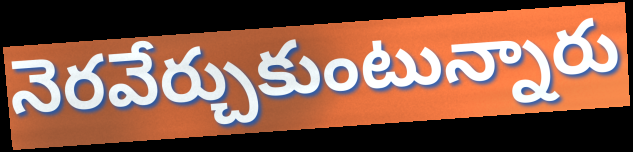
నెరవేర్చుకుంటున్నారు